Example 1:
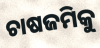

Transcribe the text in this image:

ଚାଷଜମିକୁ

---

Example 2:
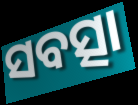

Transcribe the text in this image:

ସବତ୍ସା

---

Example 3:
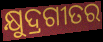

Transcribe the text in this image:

କ୍ଷୁଦ୍ରଗୀତର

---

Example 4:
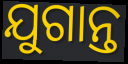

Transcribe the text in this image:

ଯୁଗାନ୍ତ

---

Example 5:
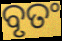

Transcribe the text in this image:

ବୃତଂ